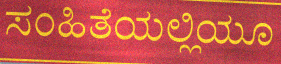
ಸಂಹಿತೆಯಲ್ಲಿಯೂ